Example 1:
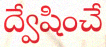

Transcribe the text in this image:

ద్వేషించే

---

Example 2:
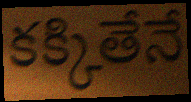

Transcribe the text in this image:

కక్కితేనే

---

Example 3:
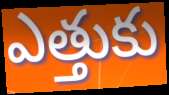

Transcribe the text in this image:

ఎత్తుకు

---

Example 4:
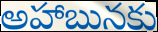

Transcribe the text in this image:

అహాబునకు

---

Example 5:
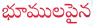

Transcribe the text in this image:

భూములపైన